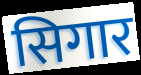
सिगार